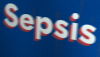
Sepsis